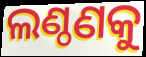
ଲଣ୍ଠଣକୁ